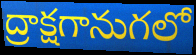
ద్రాక్షగానుగలో